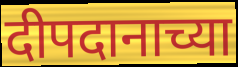
दीपदानाच्या